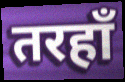
तरहाँ